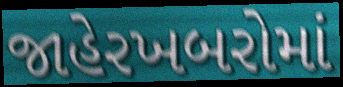
જાહેરખબરોમાં